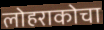
लोहराकोचा